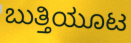
ಬುತ್ತಿಯೂಟ